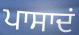
ਪਾਸਾਦਂ